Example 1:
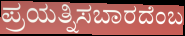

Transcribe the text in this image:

ಪ್ರಯತ್ನಿಸಬಾರದೆಂಬ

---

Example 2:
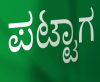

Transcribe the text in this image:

ಪಟ್ಟಾಗ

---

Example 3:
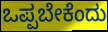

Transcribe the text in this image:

ಒಪ್ಪಬೇಕೆಂದು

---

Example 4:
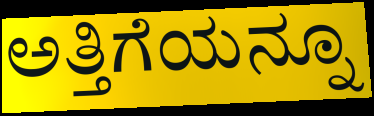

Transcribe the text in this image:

ಅತ್ತಿಗೆಯನ್ನೂ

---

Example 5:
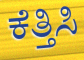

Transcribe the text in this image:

ಕೆತ್ತಿಸಿ